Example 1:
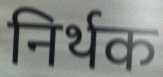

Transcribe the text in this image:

निर्थक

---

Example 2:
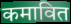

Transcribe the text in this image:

कमावित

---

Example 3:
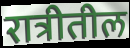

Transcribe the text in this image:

रात्रीतील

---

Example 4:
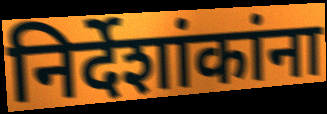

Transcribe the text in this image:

निर्देशांकांना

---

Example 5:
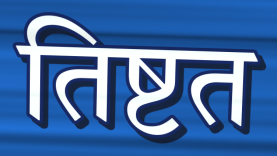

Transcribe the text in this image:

तिष्टत